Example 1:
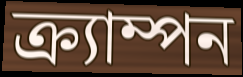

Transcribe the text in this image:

ক্র্যাম্পন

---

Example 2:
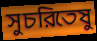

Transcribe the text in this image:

সুচরিতেষু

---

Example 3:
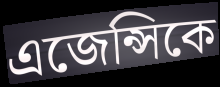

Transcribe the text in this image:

এজেন্সিকে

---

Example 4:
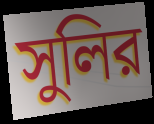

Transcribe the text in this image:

সুলির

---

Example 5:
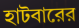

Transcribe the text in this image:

হাটবারের